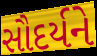
સૌદર્યને